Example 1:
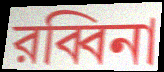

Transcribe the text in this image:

রব্বিনা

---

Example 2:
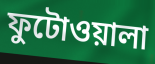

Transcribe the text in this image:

ফুটোওয়ালা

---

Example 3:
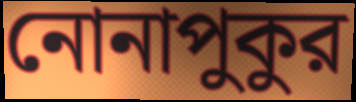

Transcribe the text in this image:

নোনাপুকুর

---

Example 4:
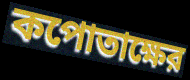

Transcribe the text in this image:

কপোতাক্ষের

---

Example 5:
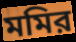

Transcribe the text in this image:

মমির